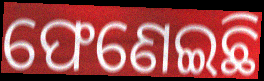
ଫେଣେଇଛି